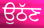
ਉਠੱਣ